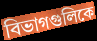
বিভাগগুলিকে